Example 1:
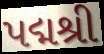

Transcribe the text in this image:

પદ્મશ્રી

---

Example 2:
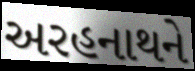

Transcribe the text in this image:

અરહનાથને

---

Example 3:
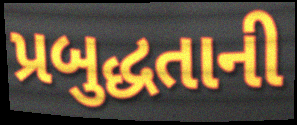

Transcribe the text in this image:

પ્રબુદ્ધતાની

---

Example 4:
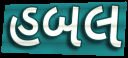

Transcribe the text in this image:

હબલ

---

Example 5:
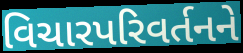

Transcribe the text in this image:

વિચારપરિવર્તનને